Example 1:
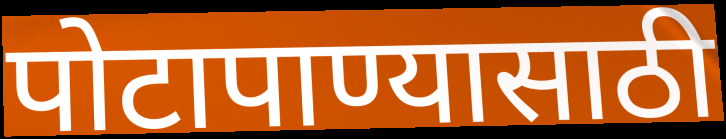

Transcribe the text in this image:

पोटापाण्यासाठी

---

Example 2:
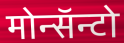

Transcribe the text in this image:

मोन्सॅन्टो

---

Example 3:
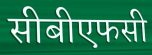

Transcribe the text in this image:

सीबीएफसी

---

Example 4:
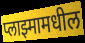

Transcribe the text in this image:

प्लाझ्मामधील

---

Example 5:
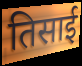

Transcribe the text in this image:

तिसाई